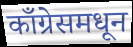
काँग्रेसमधून